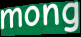
mong